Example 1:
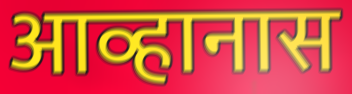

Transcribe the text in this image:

आव्हानास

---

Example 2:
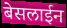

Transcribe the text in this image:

बेसलाईन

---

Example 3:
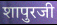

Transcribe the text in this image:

शापुरजी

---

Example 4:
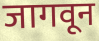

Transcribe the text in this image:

जागवून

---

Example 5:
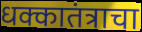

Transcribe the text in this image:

धक्कातंत्राचा